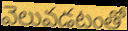
వెలువడటంతో